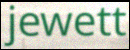
jewett